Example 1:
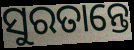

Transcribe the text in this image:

ସୁରତାନ୍ତେ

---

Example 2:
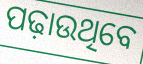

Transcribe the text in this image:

ପଢ଼ାଉଥିବେ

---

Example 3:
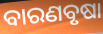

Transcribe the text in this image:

ବାରଣବୃଷା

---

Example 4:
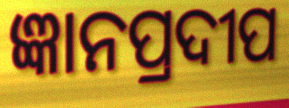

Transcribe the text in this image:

ଜ୍ଞାନପ୍ରଦୀପ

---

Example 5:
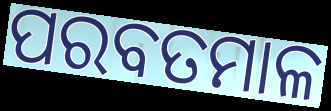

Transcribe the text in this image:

ପରବତମାଳ